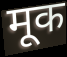
मूक